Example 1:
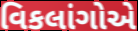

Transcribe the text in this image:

વિકલાંગોએ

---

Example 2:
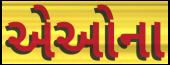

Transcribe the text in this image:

એઓના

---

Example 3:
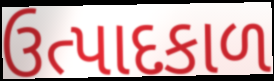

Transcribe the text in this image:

ઉત્પાદકાળ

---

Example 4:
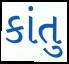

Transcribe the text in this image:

કાંતુ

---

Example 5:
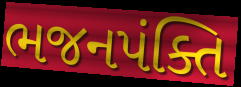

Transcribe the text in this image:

ભજનપંક્તિ